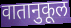
वातानुकूल